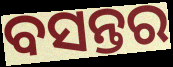
ବସନ୍ତର